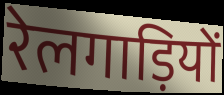
रेलगाड़ियों